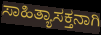
ಸಾಹಿತ್ಯಾಸಕ್ತನಾಗಿ